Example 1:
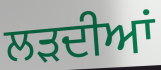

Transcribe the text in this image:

ਲੜਦੀਆਂ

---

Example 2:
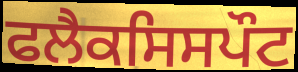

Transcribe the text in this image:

ਫਲੈਕਸਿਸਪੌਟ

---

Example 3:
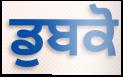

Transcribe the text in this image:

ਡੁਬਕੋ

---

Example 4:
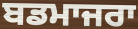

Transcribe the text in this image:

ਬਡਮਾਜਰਾ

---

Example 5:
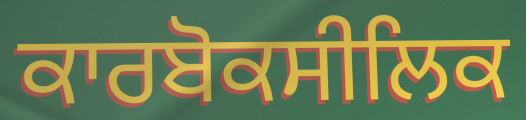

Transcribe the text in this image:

ਕਾਰਬੋਕਸੀਲਿਕ